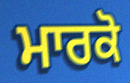
ਮਾਰਕੋ